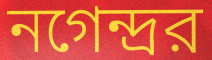
নগেন্দ্রর